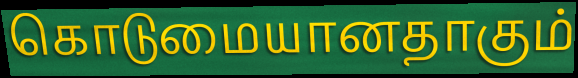
கொடுமையானதாகும்